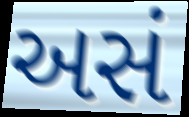
અસં